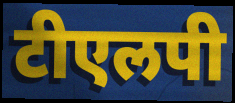
टीएलपी